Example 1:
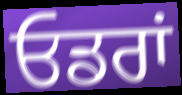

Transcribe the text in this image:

ਓਡਰਾਂ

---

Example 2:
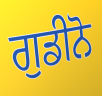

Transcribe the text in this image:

ਗੁਡੀਨੋ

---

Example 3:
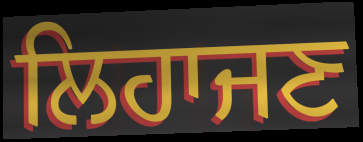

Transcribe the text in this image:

ਲਿਹਾਜਣ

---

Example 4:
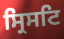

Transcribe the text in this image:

ਸ੍ਰਿਸਟਿ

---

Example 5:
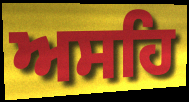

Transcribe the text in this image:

ਅਸਹਿ